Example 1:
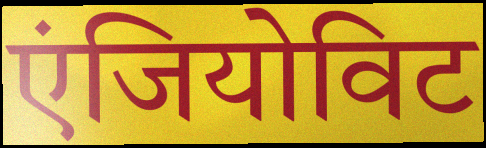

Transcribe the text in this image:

एंजियोविट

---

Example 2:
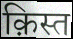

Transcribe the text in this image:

क़िस्त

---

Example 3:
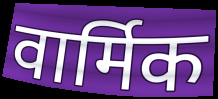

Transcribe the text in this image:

वार्मिक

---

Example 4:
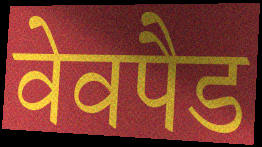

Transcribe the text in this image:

वेवपैड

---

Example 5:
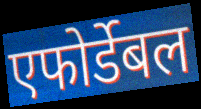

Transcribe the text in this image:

एफोर्डेबल